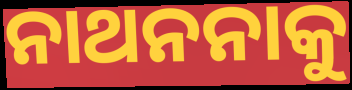
ନାଥନନାକୁ